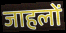
जाहलों